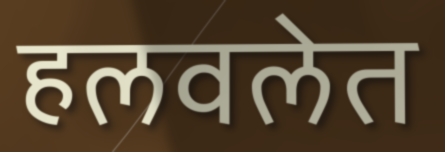
हलवलेत